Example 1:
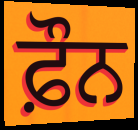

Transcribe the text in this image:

ਫ਼ੌਨ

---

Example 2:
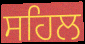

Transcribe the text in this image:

ਸਹਿਲ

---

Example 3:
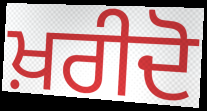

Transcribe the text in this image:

ਖ਼ਰੀਦੋ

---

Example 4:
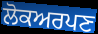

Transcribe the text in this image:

ਲੋਕਅਰਪਣ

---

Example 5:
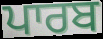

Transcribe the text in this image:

ਪਾਰਬ